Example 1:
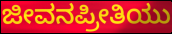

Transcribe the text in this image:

ಜೀವನಪ್ರೀತಿಯು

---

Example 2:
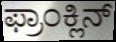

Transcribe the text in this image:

ಫ್ರಾಂಕ್ಲಿನ್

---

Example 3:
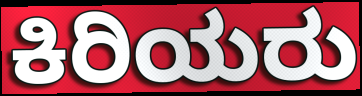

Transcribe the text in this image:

ಕಿರಿಯರು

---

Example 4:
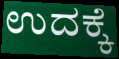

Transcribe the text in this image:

ಉದಕ್ಕೆ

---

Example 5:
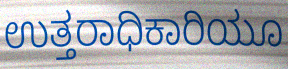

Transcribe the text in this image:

ಉತ್ತರಾಧಿಕಾರಿಯೂ